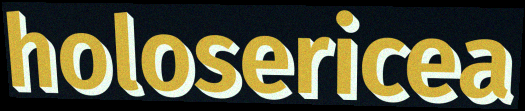
holosericea